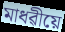
মাধৱীয়ে